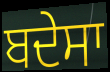
ਬਦੇਸਾ